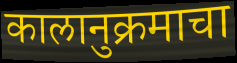
कालानुक्रमाचा